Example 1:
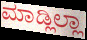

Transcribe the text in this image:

ಮಾಡ್ಲಿಲ್ಲಾ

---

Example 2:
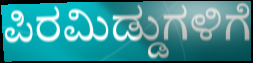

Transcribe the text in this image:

ಪಿರಮಿಡ್ಡುಗಳಿಗೆ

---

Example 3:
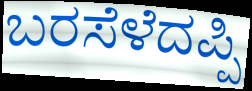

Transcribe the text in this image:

ಬರಸೆಳೆದಪ್ಪಿ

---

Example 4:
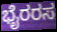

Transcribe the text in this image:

ಭೈರರಸ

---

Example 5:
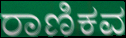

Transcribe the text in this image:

ರಾಣಿಕವ